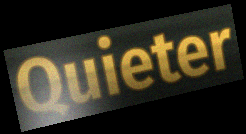
Quieter